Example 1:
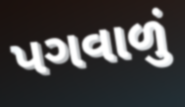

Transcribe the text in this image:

પગવાળું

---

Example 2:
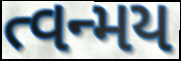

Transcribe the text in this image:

ત્વન્મય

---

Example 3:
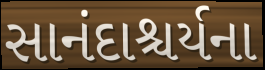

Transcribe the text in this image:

સાનંદાશ્ચર્યના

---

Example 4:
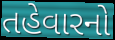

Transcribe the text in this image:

તહેવારનો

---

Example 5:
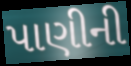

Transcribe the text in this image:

પાણીની